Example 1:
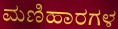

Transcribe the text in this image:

ಮಣಿಹಾರಗಳ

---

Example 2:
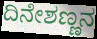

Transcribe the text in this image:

ದಿನೇಶಣ್ಣನ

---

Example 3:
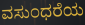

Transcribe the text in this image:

ವಸುಂಧರೆಯ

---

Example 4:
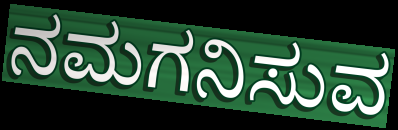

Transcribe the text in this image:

ನಮಗನಿಸುವ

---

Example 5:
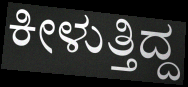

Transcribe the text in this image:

ಕೀಳುತ್ತಿದ್ದ